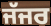
ਜੱਜਰ